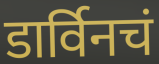
डार्विनचं